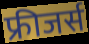
फ्रीजर्स